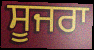
ਸੂਜਰਾ